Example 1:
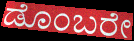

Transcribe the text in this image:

ಡೊಂಬರೇ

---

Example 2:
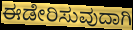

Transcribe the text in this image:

ಈಡೇರಿಸುವುದಾಗಿ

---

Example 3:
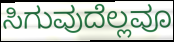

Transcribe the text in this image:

ಸಿಗುವುದೆಲ್ಲವೂ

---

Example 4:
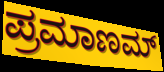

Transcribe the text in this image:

ಪ್ರಮಾಣಮ್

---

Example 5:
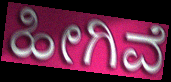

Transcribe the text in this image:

ಹೀಗಿವೆ